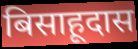
बिसाहूदास